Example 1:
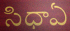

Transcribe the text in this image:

సిధాఏ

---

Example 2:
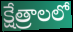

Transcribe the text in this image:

క్షేత్రాలలో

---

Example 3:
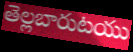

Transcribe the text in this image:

తెల్లబారుటయు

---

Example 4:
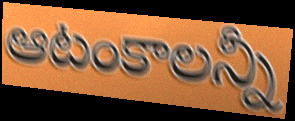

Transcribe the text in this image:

ఆటంకాలన్నీ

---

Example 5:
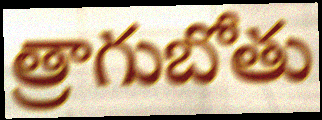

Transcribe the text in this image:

త్రాగుబోతు